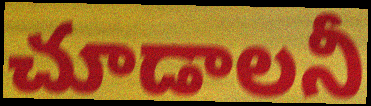
చూడాలనీ